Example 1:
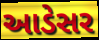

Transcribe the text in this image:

આડેસર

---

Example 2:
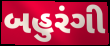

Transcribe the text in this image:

બહુરંગી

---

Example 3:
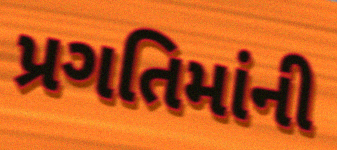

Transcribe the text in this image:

પ્રગતિમાંની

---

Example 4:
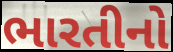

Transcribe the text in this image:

ભારતીનો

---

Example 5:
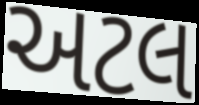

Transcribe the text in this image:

અટલ